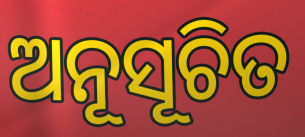
ଅନୂସୂଚିତ